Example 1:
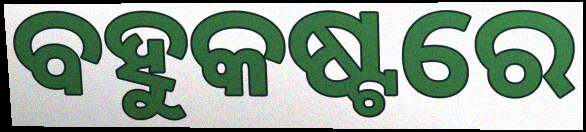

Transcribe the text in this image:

ବହୁକଷ୍ଟରେ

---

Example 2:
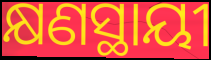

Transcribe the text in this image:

କ୍ଷଣସ୍ଥାୟୀ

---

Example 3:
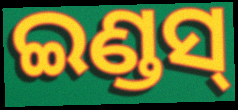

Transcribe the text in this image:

ଇଣ୍ଡସ୍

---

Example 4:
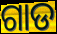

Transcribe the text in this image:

ଗାଡ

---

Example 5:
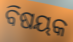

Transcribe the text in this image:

ବିଷୟକ